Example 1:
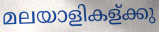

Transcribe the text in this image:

മലയാളികള്ക്കു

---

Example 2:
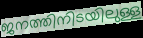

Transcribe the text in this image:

ജനത്തിനിടയിലുള്ള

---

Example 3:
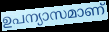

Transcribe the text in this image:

ഉപന്യാസമാണ്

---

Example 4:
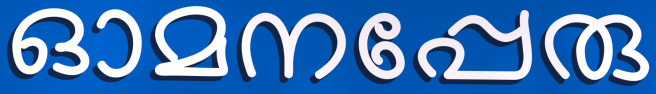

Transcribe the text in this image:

ഓമനപ്പേരു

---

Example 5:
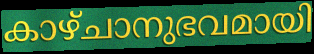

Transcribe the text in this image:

കാഴ്ചാനുഭവമായി